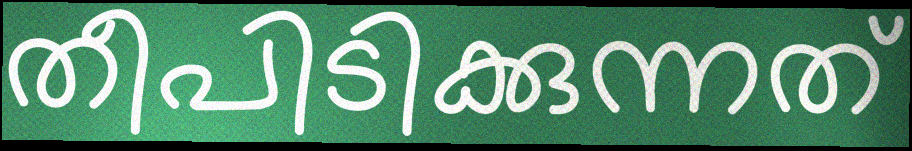
തീപിടിക്കുന്നത്